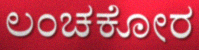
ಲಂಚಕೋರ